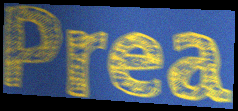
Prea